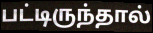
பட்டிருந்தால்